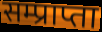
सम्प्राप्ता